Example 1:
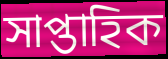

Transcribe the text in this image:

সাপ্তাহিক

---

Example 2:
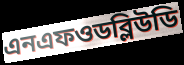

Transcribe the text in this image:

এনএফওডব্লিউডি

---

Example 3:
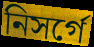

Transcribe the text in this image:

নিসর্গে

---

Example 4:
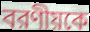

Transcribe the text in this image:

বরণীয়কে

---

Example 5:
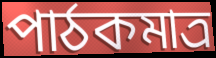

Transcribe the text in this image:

পাঠকমাত্র